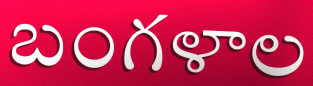
బంగళాల